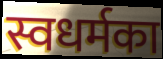
स्वधर्मका